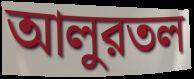
আলুরতল